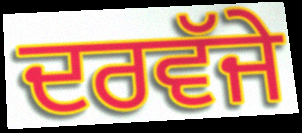
ਦਰਵੱਜੇ